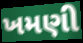
ખમણી